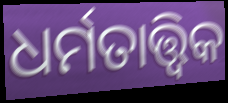
ଧର୍ମତାତ୍ତ୍ଵିକ